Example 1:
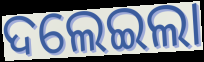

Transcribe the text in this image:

ଦଲେଇଲା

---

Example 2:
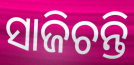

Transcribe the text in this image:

ସାଜିଚନ୍ତି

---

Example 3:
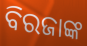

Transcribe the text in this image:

ବିରଜାଙ୍କ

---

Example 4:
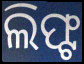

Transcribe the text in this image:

ଲିଫ୍ଟ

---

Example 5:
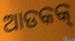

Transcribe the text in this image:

ଆଡକକ୍